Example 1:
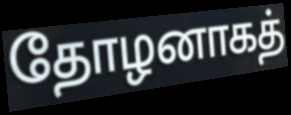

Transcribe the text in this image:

தோழனாகத்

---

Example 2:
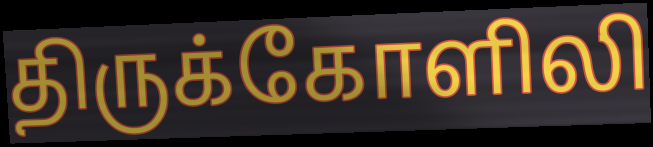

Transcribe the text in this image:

திருக்கோளிலி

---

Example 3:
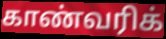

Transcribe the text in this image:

காண்வரிக்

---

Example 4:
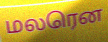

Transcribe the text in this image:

மலரென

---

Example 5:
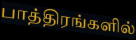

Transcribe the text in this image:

பாத்திரங்களில்